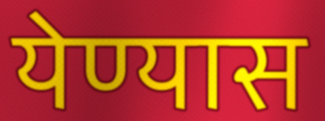
येण्यास